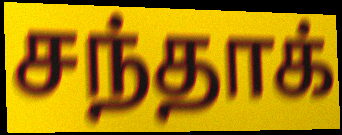
சந்தாக்